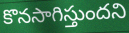
కొనసాగిస్తుందని